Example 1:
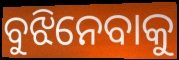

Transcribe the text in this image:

ବୁଝିନେବାକୁ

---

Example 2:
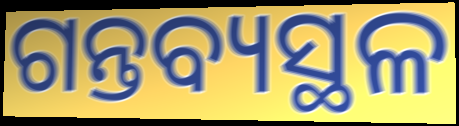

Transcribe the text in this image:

ଗନ୍ତବ୍ୟସ୍ଥଳ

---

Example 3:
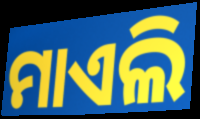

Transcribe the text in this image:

ମାଏଲି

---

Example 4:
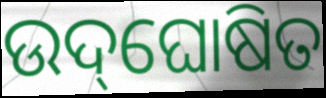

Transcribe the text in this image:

ଉଦ୍‌ଘୋଷିତ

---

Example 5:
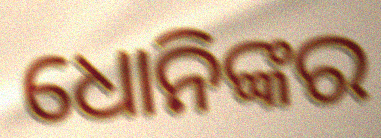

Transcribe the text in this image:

ଧୋନିଙ୍କର